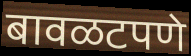
बावळटपणे